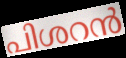
പിശറൻ